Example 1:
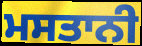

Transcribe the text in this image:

ਮਸਤਾਨੀ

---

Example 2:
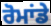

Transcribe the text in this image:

ਰੋਮਾਂਡੇ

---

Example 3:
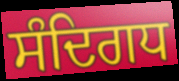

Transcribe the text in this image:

ਸੰਦਿਗਧ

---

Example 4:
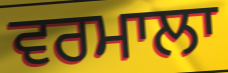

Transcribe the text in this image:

ਵਰਮਾਲਾ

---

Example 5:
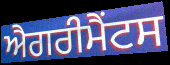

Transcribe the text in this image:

ਐਗਰੀਮੈਂਟਸ